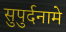
सुपुर्दनामे